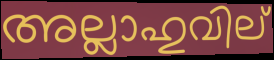
അല്ലാഹുവില്